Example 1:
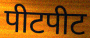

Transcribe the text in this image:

पीटपीट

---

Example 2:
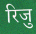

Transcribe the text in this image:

रिजु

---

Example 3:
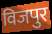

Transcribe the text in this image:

विजपुर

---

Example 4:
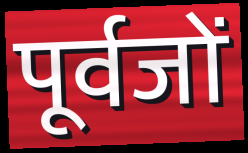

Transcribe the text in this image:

पूर्वजों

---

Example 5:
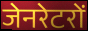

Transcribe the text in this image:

जेनरेटरों